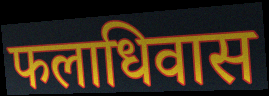
फलाधिवास